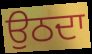
ਉਠਦਾ